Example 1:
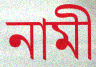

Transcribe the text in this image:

নামী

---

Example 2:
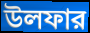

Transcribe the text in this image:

উলফার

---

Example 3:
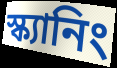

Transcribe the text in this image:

স্ক্যানিং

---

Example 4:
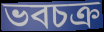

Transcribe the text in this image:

ভবচক্র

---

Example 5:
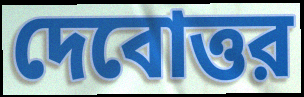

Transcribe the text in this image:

দেবোত্তর